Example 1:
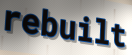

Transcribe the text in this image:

rebuilt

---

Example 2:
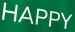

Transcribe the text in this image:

HAPPY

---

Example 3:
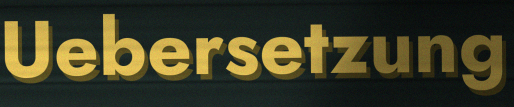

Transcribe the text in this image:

Uebersetzung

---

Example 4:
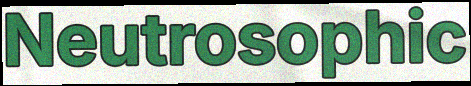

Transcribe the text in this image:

Neutrosophic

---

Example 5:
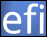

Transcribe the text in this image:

efi